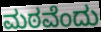
ಮಠವೆಂದು